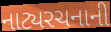
નાટ્યરચનાની